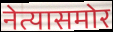
नेत्यासमोर